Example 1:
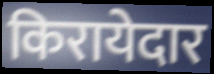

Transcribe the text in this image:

किरायेदार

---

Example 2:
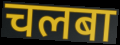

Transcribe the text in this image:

चलबा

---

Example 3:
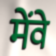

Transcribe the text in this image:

मेंवे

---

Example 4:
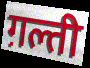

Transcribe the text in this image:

ग़ल्ती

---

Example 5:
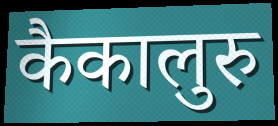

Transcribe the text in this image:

कैकालुरु